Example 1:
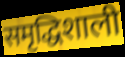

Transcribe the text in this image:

समृद्धिशाली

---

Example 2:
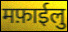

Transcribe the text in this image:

मफ़ाईलु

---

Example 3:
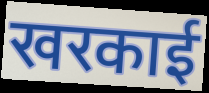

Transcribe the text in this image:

खरकाई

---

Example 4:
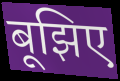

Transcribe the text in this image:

बूझिए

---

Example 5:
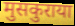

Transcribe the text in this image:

मुसकुराया